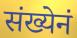
संख्येनं